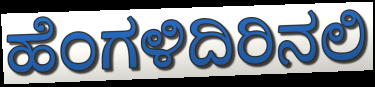
ಹೆಂಗಳಿದಿರಿನಲಿ